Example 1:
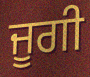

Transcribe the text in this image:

ਜੂਗੀ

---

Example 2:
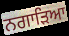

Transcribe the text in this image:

ਨਗਾੜਿਆ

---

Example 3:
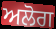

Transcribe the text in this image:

ਅਲੋਗ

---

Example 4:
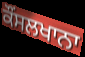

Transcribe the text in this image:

ਕੌਂਸਲਖਾਨਾ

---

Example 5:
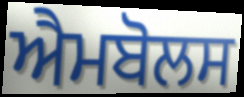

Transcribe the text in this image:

ਐਮਬੋਲਸ